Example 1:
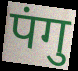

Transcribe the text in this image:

पंगु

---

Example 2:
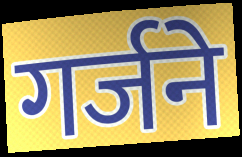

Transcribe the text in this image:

गर्जने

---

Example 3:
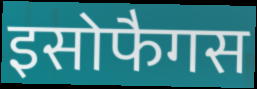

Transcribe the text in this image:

इसोफैगस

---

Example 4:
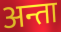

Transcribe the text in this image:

अन्ता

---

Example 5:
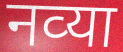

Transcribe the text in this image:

नव्‍या